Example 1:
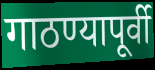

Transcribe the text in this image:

गाठण्यापूर्वी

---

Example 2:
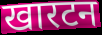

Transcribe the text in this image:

खारटन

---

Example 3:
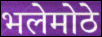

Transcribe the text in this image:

भलेमोठे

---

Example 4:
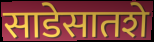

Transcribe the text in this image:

साडेसातशे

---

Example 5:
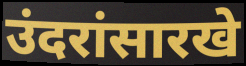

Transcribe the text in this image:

उंदरांसारखे